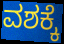
ವಶಕ್ಕೆ